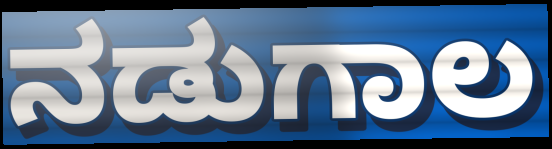
ನಡುಗಾಲ